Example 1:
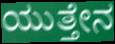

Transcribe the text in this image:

ಯುತ್ತೇನ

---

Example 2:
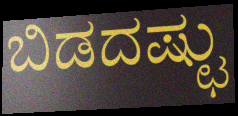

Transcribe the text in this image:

ಬಿಡದಷ್ಟು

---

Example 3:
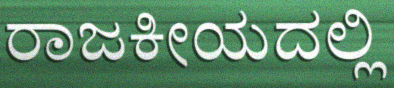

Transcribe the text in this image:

ರಾಜಕೀಯದಲ್ಲಿ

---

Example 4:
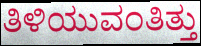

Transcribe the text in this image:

ತಿಳಿಯುವಂತಿತ್ತು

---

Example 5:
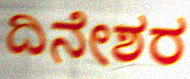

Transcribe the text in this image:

ದಿನೇಶರ